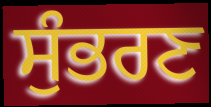
ਸੁੰਭਰਣ